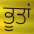
ਭੂਤਾਂ